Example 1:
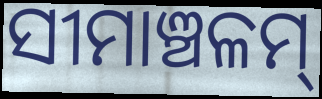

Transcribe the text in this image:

ସୀମାଞ୍ଚଳମ୍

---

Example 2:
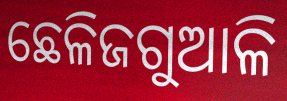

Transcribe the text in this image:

ଛେଳିଜଗୁଆଳି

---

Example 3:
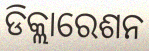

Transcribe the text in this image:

ଡିକ୍ଲାରେଶନ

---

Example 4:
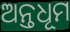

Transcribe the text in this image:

ଅନ୍ତଧୂମ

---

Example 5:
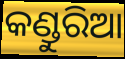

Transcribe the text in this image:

କଣ୍ଡୁରିଆ